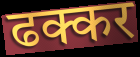
ढक्कर